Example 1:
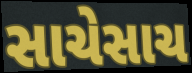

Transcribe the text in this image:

સાચેસાચ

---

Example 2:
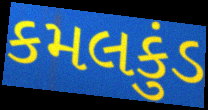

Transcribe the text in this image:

કમલકુંડ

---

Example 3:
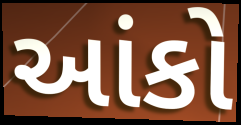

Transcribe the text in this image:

આંકો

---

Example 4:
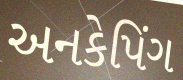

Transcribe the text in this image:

અનકેપિંગ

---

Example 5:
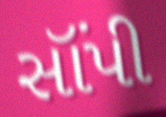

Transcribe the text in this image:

સૉંપી